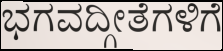
ಭಗವದ್ಗೀತೆಗಳಿಗೆ